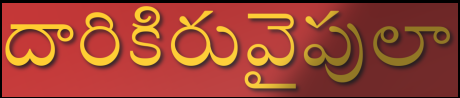
దారికిరువైపులా